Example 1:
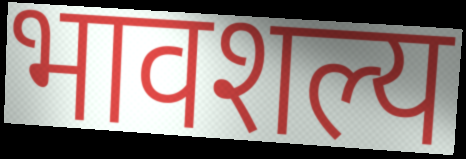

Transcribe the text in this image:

भावशल्य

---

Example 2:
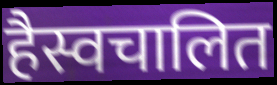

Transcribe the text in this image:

हैस्वचालित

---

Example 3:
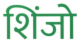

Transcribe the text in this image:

शिंजो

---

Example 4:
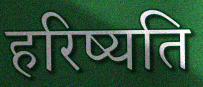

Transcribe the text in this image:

हरिष्यति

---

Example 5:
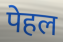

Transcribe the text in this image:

पेहल